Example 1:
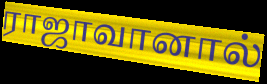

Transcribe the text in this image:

ராஜாவானால்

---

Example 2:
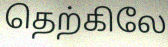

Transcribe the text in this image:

தெற்கிலே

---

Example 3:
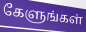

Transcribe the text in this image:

கேளுங்கள்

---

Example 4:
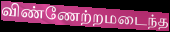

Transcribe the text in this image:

விண்ணேற்றமடைந்த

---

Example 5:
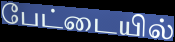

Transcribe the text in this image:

பேட்டையில்